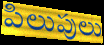
పిలుపులు